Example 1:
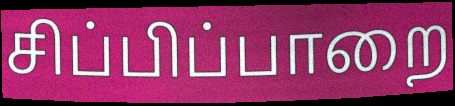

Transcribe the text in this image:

சிப்பிப்பாறை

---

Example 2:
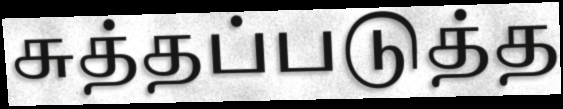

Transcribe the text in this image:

சுத்தப்படுத்த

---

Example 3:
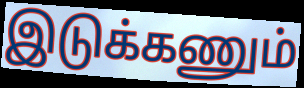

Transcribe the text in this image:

இடுக்கணும்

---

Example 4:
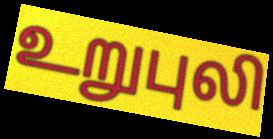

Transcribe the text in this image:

உறுபுலி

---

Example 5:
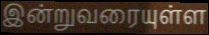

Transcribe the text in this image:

இன்றுவரையுள்ள